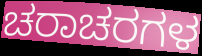
ಚರಾಚರಗಳ